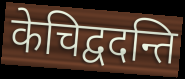
केचिद्वदन्ति